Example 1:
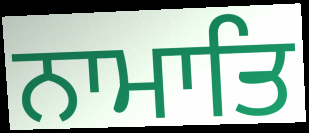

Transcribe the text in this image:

ਨਾਮਾਤਿ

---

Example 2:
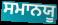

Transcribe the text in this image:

ਸਮਾਨਯੂ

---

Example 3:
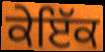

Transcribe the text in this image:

ਕੇਇੱਕ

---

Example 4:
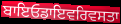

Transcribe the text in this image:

ਬਾਇਓਡਾਇਵਰਿਵਸਤਾ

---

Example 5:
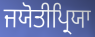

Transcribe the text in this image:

ਜਯੋਤੀਪ੍ਰਿਯਾ